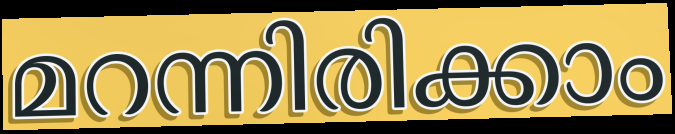
മറന്നിരിക്കാം